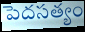
పెదసత్యం